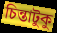
চিন্তাটুকু